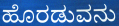
ಹೊರಡುವನು